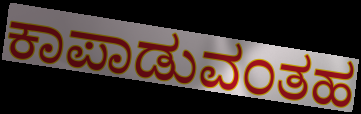
ಕಾಪಾಡುವಂತಹ